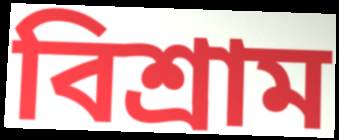
বিশ্ৰাম